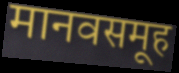
मानवसमूह